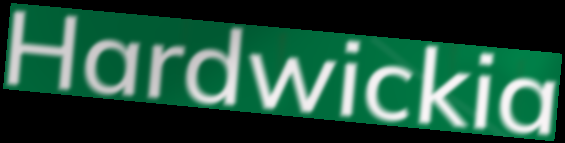
Hardwickia